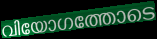
വിയോഗത്തോടെ